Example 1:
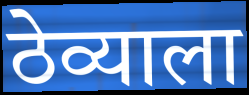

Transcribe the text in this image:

ठेव्याला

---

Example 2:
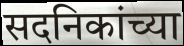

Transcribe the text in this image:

सदनिकांच्या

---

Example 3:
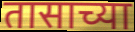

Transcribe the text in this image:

तासाच्या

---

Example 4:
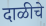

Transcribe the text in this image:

दाळीचे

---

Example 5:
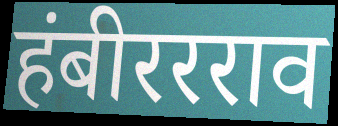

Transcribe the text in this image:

हंबीररराव